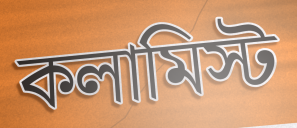
কলামিস্ট